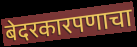
बेदरकारपणाचा